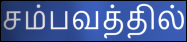
சம்பவத்தில்